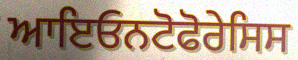
ਆਇਓਨਟੋਫੋਰੇਸਿਸ